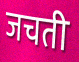
जचती